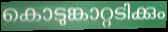
കൊടുങ്കാറ്റടിക്കും